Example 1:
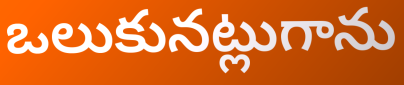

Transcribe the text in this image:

ఒలుకునట్లుగాను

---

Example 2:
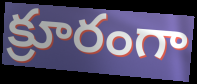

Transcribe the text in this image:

క్రూరంగా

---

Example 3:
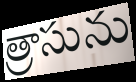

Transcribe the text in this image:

త్రాసును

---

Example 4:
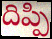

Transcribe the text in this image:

దిప్పి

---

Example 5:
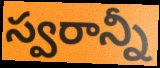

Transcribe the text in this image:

స్వరాన్నీ